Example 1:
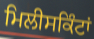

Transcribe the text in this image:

ਮਿਲੀਸਕਿੰਟਾਂ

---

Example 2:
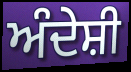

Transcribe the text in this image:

ਅੰਦੇਸ਼ੀ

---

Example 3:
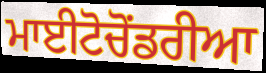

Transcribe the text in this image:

ਮਾਈਟੋਚੋਂਡਰੀਆ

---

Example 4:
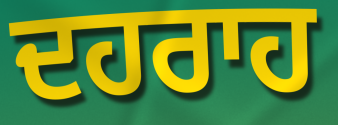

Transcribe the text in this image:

ਦਹਰਾਹ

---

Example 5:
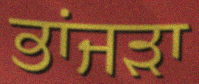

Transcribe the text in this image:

ਭਾਂਜੜਾ